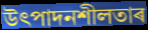
উৎপাদনশীলতাৰ